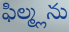
ఫిల్మ్లను